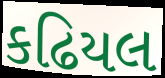
કઢિયલ